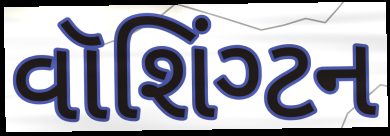
વૉશિંગ્ટન